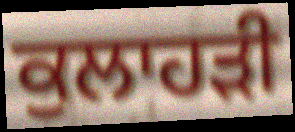
ਕੁਲਾਹੜੀ